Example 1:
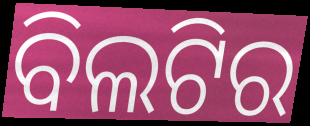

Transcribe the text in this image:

ବିଲଟିର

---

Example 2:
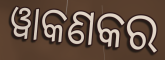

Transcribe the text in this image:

ୱାକଣକର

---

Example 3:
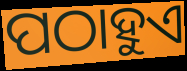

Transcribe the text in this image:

ପଠାହୁଏ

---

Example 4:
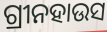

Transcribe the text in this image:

ଗ୍ରୀନହାଉସ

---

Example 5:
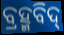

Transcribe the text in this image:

ବ୍ରହ୍ମବିଦ୍